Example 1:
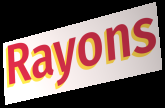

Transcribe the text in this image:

Rayons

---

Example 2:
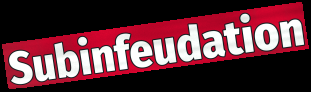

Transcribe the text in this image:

Subinfeudation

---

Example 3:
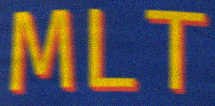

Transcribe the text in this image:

MLT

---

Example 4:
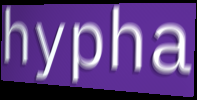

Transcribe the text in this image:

hypha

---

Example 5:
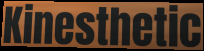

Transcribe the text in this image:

Kinesthetic